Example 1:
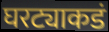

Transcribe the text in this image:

घरट्याकडं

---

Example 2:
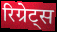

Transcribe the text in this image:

रिग्रेट्स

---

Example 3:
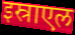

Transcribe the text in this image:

इस्राएल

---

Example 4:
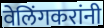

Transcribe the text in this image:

वेलिंगकरांनी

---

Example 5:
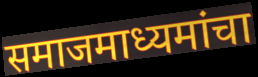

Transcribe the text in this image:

समाजमाध्यमांचा